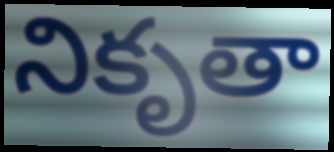
నికృతా